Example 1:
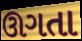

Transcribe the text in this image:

ઊગતા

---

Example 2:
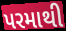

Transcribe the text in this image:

પરમાથી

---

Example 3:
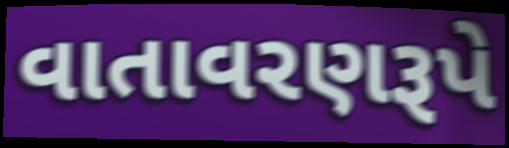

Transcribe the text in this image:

વાતાવરણરૂપે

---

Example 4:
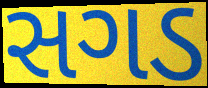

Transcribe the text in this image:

સગડ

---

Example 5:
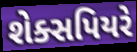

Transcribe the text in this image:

શેક્સપિયરે